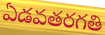
ఏడవతరగతి